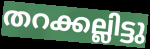
തറക്കല്ലിട്ടു